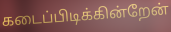
கடைப்பிடிக்கின்றேன்